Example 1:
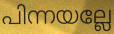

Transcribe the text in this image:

പിന്നയല്ലേ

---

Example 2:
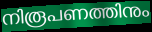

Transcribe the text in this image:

നിരൂപണത്തിനും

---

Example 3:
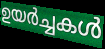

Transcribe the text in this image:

ഉയർച്ചകൾ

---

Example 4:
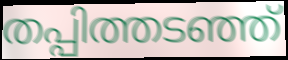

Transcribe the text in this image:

തപ്പിത്തടഞ്ഞ്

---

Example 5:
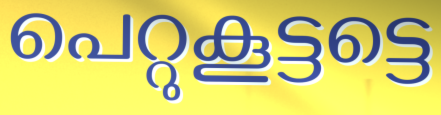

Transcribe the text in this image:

പെറ്റുകൂട്ടട്ടെ